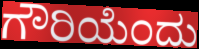
ಗೌರಿಯೆಂದು